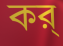
কর্